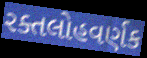
રક્તલોહવર્ણક